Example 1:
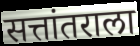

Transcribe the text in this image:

सत्तांतराला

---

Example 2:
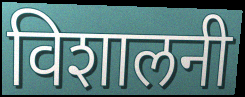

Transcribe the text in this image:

विशालनी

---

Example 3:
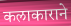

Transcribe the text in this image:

कलाकाराने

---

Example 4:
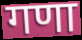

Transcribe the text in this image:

गणा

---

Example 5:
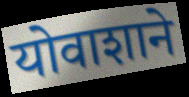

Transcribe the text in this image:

योवाशाने